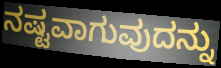
ನಷ್ಟವಾಗುವುದನ್ನು